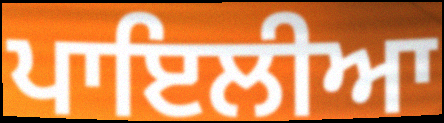
ਪਾਇਲੀਆ